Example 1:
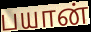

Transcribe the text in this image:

பயான்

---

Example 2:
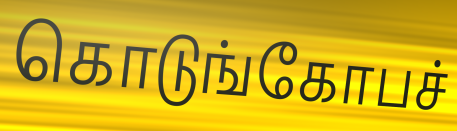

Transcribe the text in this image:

கொடுங்கோபச்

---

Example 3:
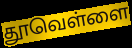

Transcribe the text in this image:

தூவெள்ளை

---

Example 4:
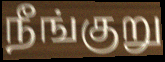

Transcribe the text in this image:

நீங்குறு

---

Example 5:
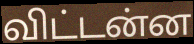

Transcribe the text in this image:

விட்டன்ன